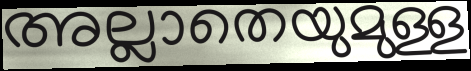
അല്ലാതെയുമുള്ള